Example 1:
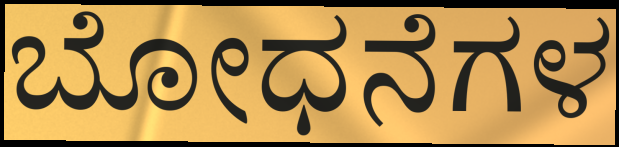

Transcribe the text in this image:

ಬೋಧನೆಗಳ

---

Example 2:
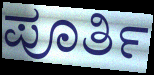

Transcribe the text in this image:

ಪೂರ್ತಿ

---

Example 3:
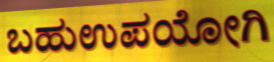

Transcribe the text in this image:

ಬಹುಉಪಯೋಗಿ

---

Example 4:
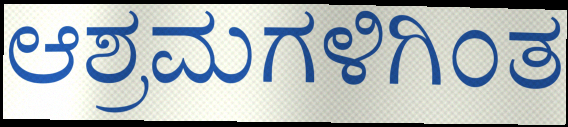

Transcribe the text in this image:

ಆಶ್ರಮಗಳಿಗಿಂತ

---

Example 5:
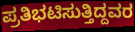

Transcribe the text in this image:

ಪ್ರತಿಭಟಿಸುತ್ತಿದ್ದವರ